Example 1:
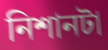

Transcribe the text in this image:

নিশানটা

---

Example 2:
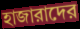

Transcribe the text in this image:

হাজারাদের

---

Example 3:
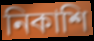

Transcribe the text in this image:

নিকাশি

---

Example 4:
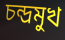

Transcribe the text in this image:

চন্দ্রমুখ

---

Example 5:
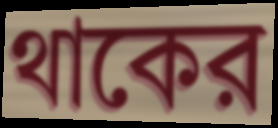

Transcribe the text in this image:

থাকের